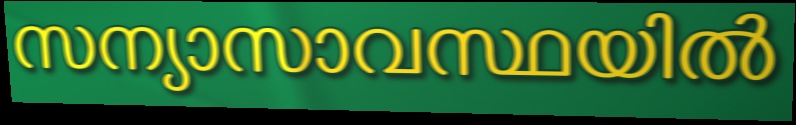
സന്യാസാവസ്ഥയിൽ